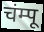
चंम्पू